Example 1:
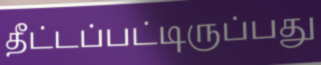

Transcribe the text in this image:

தீட்டப்பட்டிருப்பது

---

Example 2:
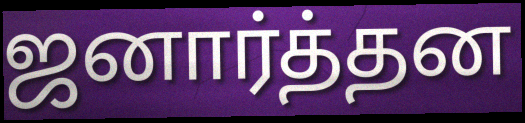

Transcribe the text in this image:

ஜனார்த்தன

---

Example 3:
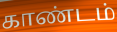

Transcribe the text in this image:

காண்டம்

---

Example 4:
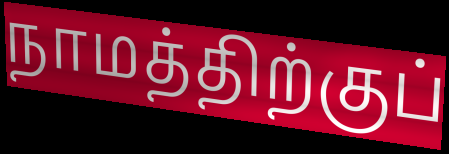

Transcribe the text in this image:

நாமத்திற்குப்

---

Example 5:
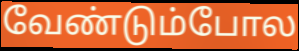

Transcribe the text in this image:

வேண்டும்போல